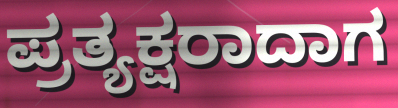
ಪ್ರತ್ಯಕ್ಷರಾದಾಗ